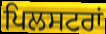
ਪਿਲਸਟਰਾਂ